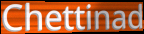
Chettinad